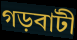
গড়বাটী